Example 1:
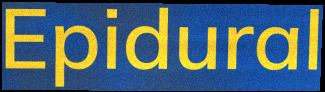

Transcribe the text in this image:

Epidural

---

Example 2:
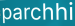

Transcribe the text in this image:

parchhi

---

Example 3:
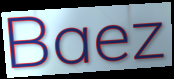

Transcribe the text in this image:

Baez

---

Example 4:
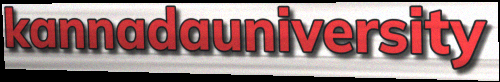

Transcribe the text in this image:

kannadauniversity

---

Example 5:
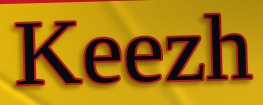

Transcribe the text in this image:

Keezh